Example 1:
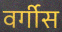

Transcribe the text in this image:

वर्गीस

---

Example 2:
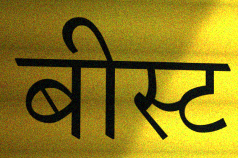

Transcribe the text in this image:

बीस्ट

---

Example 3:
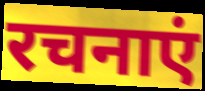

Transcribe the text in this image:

रचनाएं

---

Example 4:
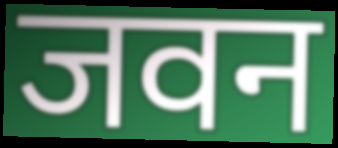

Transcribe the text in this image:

जवन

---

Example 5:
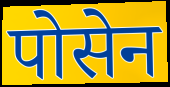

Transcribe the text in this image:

पोसेन